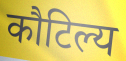
कौटिल्य